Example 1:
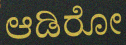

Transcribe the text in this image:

ಆಡಿರೋ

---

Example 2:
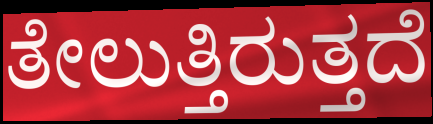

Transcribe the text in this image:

ತೇಲುತ್ತಿರುತ್ತದೆ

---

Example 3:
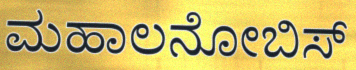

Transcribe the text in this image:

ಮಹಾಲನೋಬಿಸ್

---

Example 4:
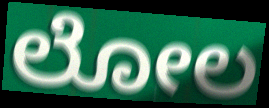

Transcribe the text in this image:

ಲೋಲ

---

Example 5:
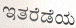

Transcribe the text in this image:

ಇತರೆಡೆಯ